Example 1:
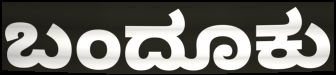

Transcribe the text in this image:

ಬಂದೂಕು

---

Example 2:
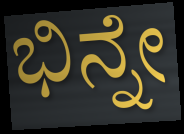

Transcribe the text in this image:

ಭಿನ್ನೇ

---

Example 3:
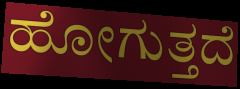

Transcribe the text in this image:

ಹೋಗುತ್ತದೆ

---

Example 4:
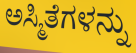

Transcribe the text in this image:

ಅಸ್ಮಿತೆಗಳನ್ನು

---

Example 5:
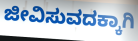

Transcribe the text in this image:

ಜೀವಿಸುವದಕ್ಕಾಗಿ